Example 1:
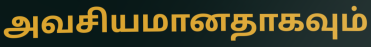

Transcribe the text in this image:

அவசியமானதாகவும்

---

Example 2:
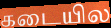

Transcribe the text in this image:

கடையில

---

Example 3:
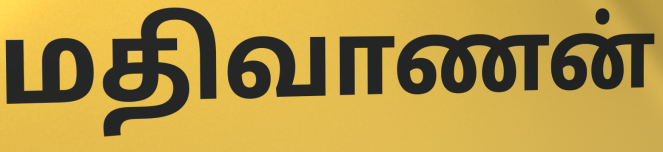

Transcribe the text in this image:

மதிவாணன்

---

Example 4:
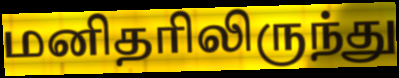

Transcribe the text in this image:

மனிதரிலிருந்து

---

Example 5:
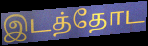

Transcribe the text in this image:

இடத்தோட